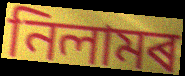
নিলামৰ